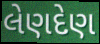
લેણદેણ